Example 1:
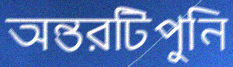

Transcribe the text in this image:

অন্তরটিপুনি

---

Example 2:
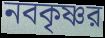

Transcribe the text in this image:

নবকৃষ্ণর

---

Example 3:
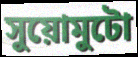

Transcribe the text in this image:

সুয়োমুটো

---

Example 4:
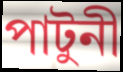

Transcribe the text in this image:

পাটুনী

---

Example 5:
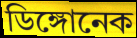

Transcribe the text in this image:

ডিঙ্গোনেক